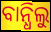
ବାନ୍ଧିଲୁ